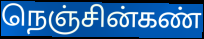
நெஞ்சின்கண்